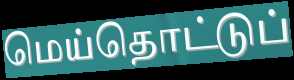
மெய்தொட்டுப்